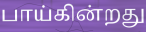
பாய்கின்றது